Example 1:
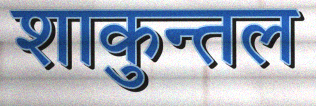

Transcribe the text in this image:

शाकुन्तल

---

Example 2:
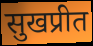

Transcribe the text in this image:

सुखप्रीत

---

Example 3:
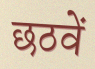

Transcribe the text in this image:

छठवें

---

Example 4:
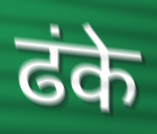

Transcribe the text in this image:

ढंके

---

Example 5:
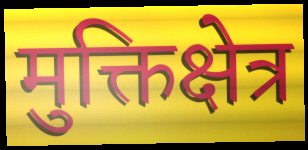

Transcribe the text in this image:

मुक्तिक्षेत्र